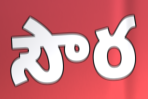
సౌర